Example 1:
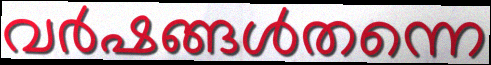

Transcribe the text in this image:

വർഷങ്ങൾതന്നെ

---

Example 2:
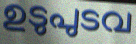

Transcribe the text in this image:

ഉടുപുടവ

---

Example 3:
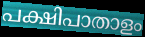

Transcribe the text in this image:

പക്ഷിപാതാളം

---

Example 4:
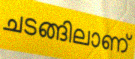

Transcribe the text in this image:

ചടങ്ങിലാണ്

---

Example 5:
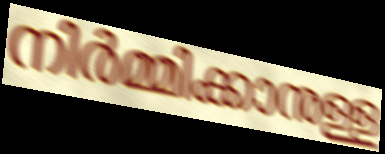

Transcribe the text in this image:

നിർമ്മിക്കാനുള്ള